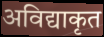
अविद्याकृत